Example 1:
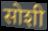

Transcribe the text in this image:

सोशी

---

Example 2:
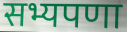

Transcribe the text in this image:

सभ्यपणा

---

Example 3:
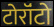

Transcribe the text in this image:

टोरॉंटो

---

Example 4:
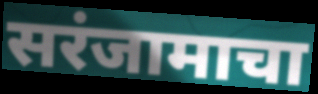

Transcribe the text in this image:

सरंजामाचा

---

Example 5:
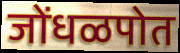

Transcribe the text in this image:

जोंधळपोत